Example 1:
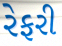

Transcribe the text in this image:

રેફરી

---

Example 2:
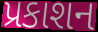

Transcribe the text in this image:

પ્રકાશન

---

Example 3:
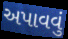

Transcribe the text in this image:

અપાવવું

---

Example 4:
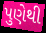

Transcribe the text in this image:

પુણેથી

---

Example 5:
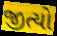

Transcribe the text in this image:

જીત્યો